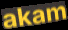
akam